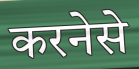
करनेसे